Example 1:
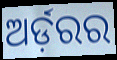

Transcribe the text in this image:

ଅର୍ଡ଼ରର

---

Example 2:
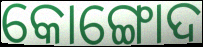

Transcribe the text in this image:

କୋଙ୍ଗୋଦ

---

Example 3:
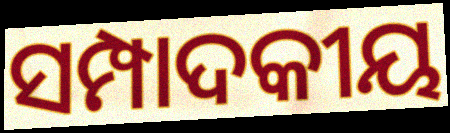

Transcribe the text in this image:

ସମ୍ପାଦକୀୟ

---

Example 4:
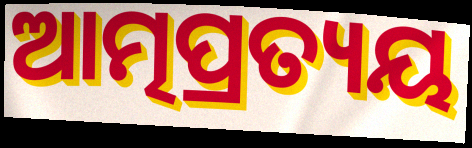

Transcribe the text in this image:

ଆତ୍ମପ୍ରତ୍ୟୟ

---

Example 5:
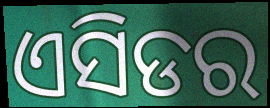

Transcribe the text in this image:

ଏସିଡର